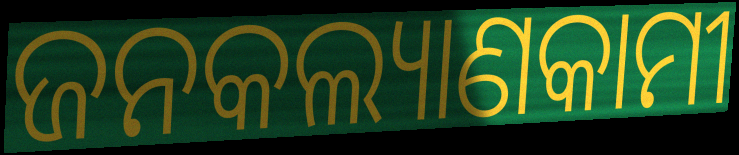
ଜନକଲ୍ୟାଣକାମୀ